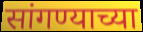
सांगण्याच्या